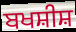
ਬਖਸ਼ੀਸ਼